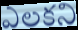
ఎలకని